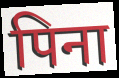
पिना